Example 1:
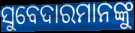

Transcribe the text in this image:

ସୁବେଦାରମାନଙ୍କୁ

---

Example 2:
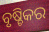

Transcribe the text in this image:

ବୃଷ୍ଚିକର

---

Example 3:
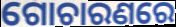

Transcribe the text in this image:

ଗୋଚାରଣରେ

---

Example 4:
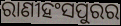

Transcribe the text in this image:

ରାଣୀହଂସପୁରର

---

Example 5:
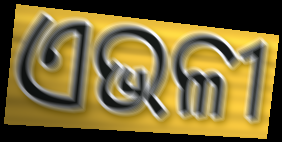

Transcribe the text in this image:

ଏଭଳୀ